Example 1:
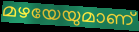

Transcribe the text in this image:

മഴയേയുമാണ്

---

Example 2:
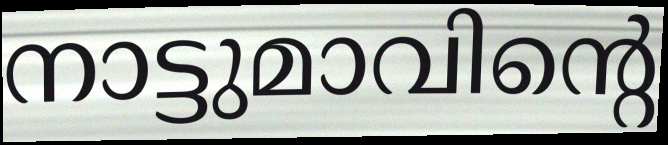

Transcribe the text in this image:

നാട്ടുമാവിന്റെ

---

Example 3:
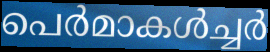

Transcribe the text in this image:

പെർമാകൾച്ചർ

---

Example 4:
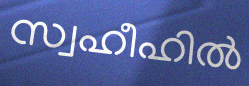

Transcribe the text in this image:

സ്വഹീഹിൽ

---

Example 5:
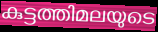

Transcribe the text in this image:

കുട്ടത്തിമലയുടെ